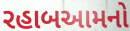
રહાબઆમનો